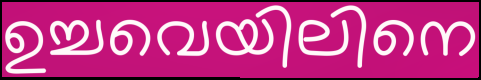
ഉച്ചവെയിലിനെ